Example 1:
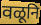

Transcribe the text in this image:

वळूनि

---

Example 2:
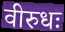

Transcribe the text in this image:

वीरुधः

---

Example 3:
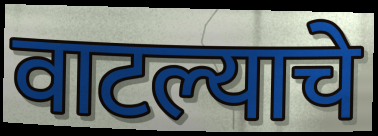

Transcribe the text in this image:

वाटल्याचे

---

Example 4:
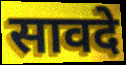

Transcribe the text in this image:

सावदे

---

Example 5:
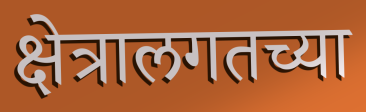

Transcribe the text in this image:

क्षेत्रालगतच्या